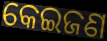
କେଇଜଣ